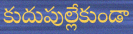
కుదుపుల్లేకుండా